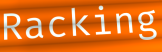
Racking